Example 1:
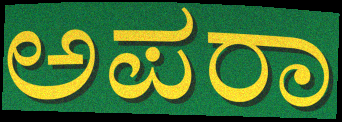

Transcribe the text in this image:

ಅಪರಾ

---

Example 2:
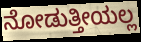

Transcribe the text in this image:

ನೋಡುತ್ತೀಯಲ್ಲ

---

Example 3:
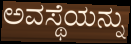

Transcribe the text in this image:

ಅವಸ್ಥೆಯನ್ನು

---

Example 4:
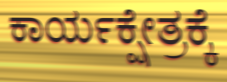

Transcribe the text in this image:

ಕಾರ್ಯಕ್ಷೇತ್ರಕ್ಕೆ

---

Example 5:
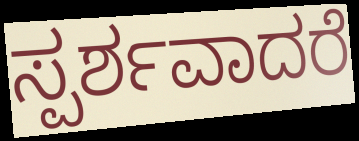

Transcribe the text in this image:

ಸ್ಪರ್ಶವಾದರೆ